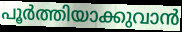
പൂർത്തിയാക്കുവാൻ